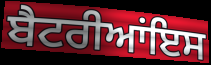
ਬੈਟਰੀਆਂਇਸ